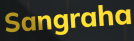
Sangraha